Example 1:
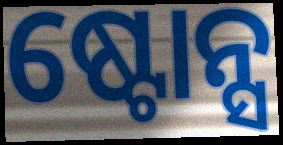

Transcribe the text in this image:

ଷ୍ଟୋନ୍ସ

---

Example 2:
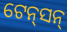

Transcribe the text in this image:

ଟେନ୍‌ସନ୍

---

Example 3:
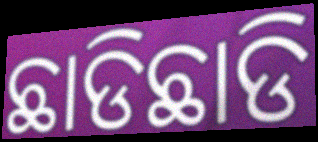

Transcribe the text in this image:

ଛାଡିଛାଡି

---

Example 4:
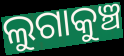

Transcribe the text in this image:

ଲୁଗାକୁଞ୍ଚ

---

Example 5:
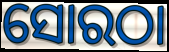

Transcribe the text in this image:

ସୋରଠା